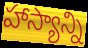
హాస్యాన్ని